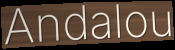
Andalou